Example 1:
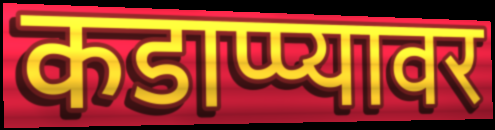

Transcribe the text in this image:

कडाप्प्यावर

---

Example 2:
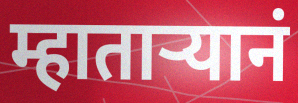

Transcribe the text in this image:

म्हाताऱ्यानं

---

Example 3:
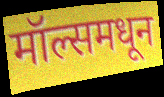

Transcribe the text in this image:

मॉल्समधून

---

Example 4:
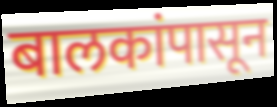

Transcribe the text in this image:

बालकांपासून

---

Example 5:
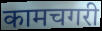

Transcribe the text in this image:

कामचगरी